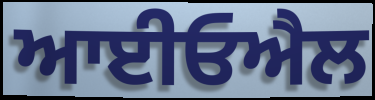
ਆਈਓਐਲ